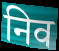
निव